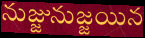
నుజ్జునుజ్జయిన